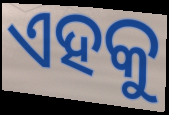
ଏହକୁ